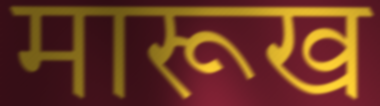
मारूख